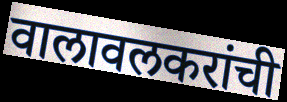
वालावलकरांची